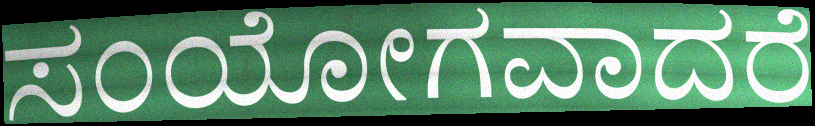
ಸಂಯೋಗವಾದರೆ